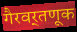
गैरवर्तणूक